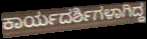
ಕಾರ್ಯದರ್ಶಿಗಳಾಗಿದ್ದ